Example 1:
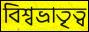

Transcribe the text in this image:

বিশ্বভ্রাতৃত্ব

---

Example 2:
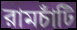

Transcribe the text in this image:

রামচাঁটি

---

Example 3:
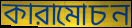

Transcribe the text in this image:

কারামোচন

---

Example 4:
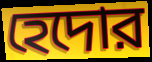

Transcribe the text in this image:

হেদোর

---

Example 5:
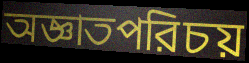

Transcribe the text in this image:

অজ্ঞাতপরিচয়